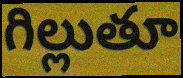
గిల్లుతూ